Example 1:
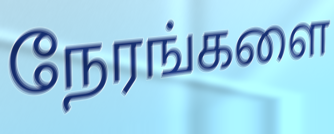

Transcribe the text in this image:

நேரங்களை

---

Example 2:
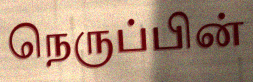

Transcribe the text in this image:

நெருப்பின்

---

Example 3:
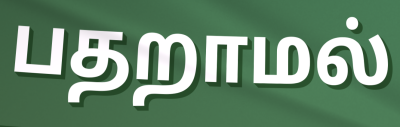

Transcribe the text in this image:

பதறாமல்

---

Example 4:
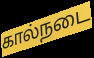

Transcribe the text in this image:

கால்நடை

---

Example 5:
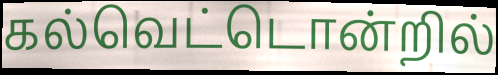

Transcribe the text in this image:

கல்வெட்டொன்றில்